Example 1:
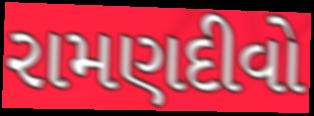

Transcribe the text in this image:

રામણદીવો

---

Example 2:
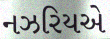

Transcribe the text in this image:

નઝરિયએ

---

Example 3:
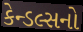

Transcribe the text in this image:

કેન્ડલ્સનો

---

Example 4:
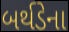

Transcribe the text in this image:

બર્થડેના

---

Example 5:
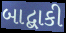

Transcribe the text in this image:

બાદ્બાકી